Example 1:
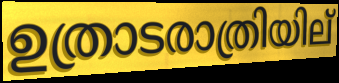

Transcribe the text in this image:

ഉത്രാടരാത്രിയില്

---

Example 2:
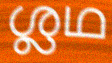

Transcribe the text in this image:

ശ്ലഥ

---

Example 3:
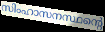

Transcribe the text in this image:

സിംഹാസനസ്ഥന്റെ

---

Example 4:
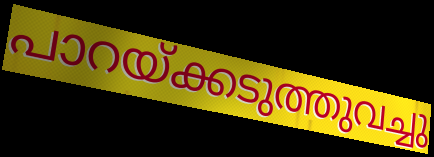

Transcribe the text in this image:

പാറയ്ക്കടുത്തുവച്ചു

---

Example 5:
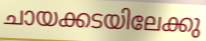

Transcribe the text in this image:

ചായക്കടയിലേക്കു